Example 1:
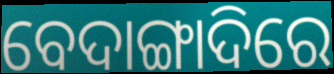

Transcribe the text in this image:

ବେଦାଙ୍ଗାଦିରେ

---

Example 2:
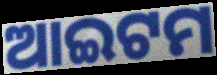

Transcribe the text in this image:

ଆଇଟମ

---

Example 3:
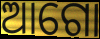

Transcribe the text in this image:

ଆଗୋ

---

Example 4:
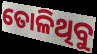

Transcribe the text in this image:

ତୋଳିଥିବୁ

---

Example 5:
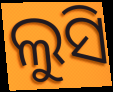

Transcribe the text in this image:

ଲୁସି